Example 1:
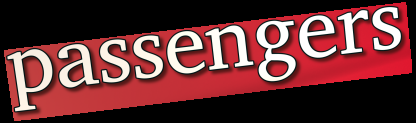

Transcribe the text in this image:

passengers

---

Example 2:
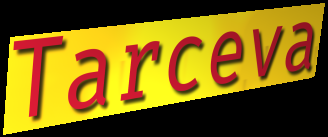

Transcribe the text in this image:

Tarceva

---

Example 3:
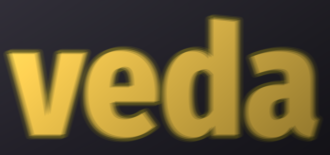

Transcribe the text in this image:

veda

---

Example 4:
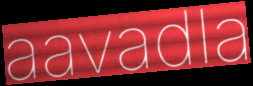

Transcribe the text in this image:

aavadla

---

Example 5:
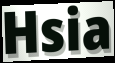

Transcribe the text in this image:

Hsia